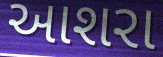
આશરા